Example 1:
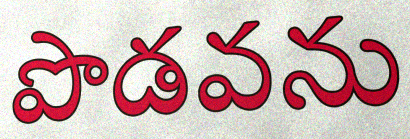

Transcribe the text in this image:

పొడవను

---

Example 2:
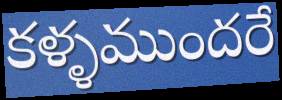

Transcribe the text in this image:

కళ్ళముందరే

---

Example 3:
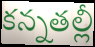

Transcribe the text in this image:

కన్నతల్లీ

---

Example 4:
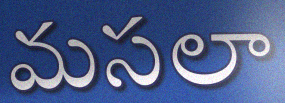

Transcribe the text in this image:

మసలా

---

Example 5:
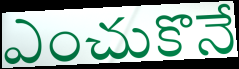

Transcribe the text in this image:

ఎంచుకొనే